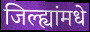
जिल्ह्यांमधे